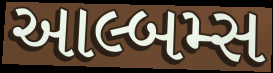
આલ્બમ્સ